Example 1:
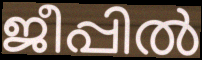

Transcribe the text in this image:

ജീപ്പിൽ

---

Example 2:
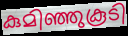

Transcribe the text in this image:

കുമിഞ്ഞുകൂടി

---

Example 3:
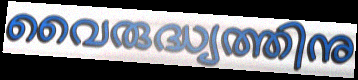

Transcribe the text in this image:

വൈരുദ്ധ്യത്തിനു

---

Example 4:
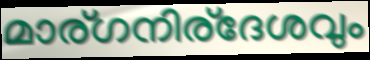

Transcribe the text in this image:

മാര്ഗനിര്ദേശവും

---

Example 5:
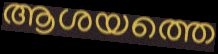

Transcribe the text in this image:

ആശയത്തെ